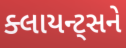
ક્લાયન્ટ્સને